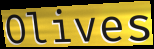
Olives